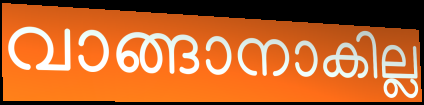
വാങ്ങാനാകില്ല